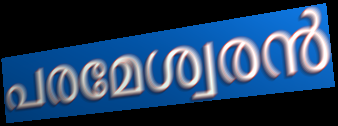
പരമേശ്വരൻ